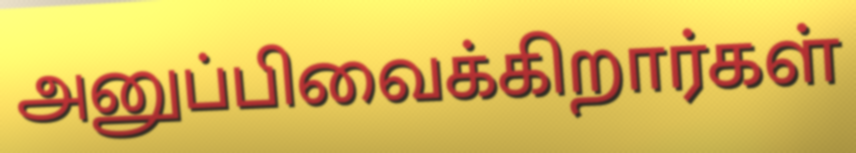
அனுப்பிவைக்கிறார்கள்